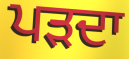
ਪੜਦਾ